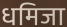
धमिजा